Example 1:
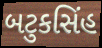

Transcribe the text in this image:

બટુકસિંહ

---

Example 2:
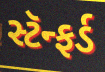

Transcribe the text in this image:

સ્ટૅન્ફર્ડ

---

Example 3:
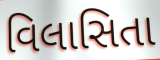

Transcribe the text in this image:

વિલાસિતા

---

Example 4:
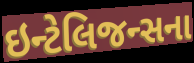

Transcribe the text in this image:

ઇન્ટેલિજન્સના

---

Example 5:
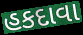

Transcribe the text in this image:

હકદાવા